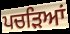
ਪਚੜਿਆਂ